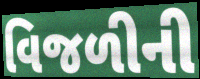
વિજળીની